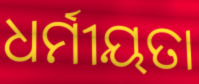
ଧର୍ମୀୟତା